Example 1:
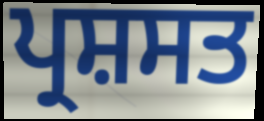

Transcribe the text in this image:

ਪ੍ਰਸ਼ਸਤ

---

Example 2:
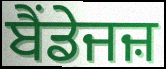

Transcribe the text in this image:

ਬੈਂਡੇਜਜ਼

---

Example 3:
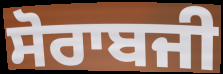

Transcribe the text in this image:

ਸੋਰਾਬਜੀ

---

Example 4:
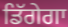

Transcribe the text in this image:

ਡਿੱਗੇਗਾ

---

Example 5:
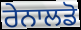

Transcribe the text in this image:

ਰੇਨਾਲਡੋ